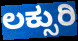
ಲಕ್ಸುರಿ